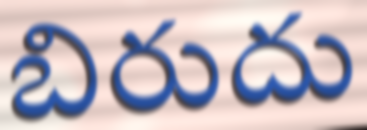
బిరుదు